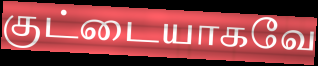
குட்டையாகவே